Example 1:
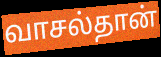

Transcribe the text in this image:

வாசல்தான்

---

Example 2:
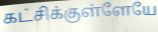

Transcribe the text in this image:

கட்சிக்குள்ளேயே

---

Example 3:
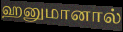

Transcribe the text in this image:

ஹனுமானால்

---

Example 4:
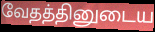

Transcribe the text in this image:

வேதத்தினுடைய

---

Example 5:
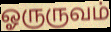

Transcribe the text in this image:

ஓருருவம்